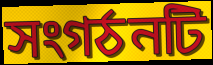
সংগঠনটি